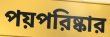
পয়পরিষ্কার